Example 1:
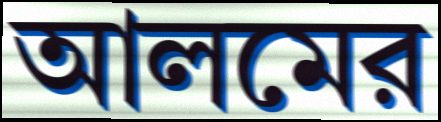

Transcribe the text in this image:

আলমের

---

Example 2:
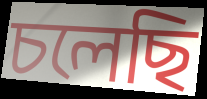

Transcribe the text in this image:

চলেছি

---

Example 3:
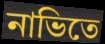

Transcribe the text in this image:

নাভিতে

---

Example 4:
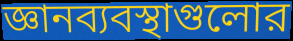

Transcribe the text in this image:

জ্ঞানব্যবস্থাগুলোর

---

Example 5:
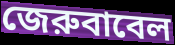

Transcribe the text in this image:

জেরুবাবেল